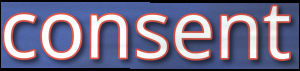
consent